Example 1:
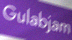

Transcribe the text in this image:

Gulabjam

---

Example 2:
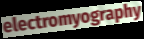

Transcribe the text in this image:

electromyography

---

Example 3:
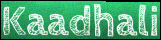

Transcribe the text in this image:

Kaadhali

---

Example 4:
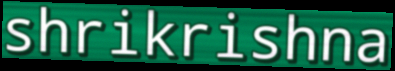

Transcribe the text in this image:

shrikrishna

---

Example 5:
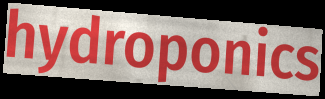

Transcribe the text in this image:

hydroponics